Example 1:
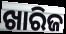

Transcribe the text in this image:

ଖାରିଜ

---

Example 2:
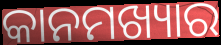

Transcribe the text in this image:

କାନମଖ୍ୟାର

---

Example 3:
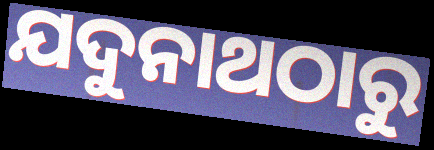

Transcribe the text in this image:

ଯଦୁନାଥଠାରୁ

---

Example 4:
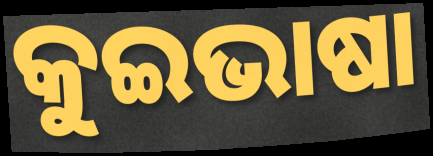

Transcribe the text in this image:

କୁଇଭାଷା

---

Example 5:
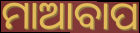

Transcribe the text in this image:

ମାଆବାପ